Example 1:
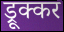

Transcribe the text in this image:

ड्रूक्कर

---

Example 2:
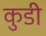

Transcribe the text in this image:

कुडी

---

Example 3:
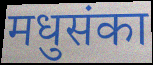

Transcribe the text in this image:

मधुसंका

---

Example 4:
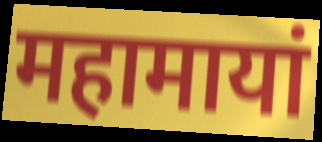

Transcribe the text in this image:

महामायां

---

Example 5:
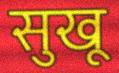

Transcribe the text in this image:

सुखू